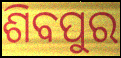
ଶିବପୁର